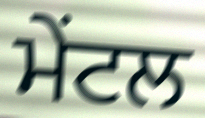
ਮੇਂਟਲ